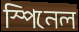
স্পিনেল